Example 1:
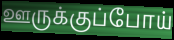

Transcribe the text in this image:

ஊருக்குப்போய்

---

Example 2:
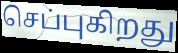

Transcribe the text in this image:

செப்புகிறது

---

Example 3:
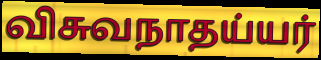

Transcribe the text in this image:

விசுவநாதய்யர்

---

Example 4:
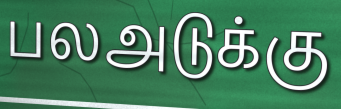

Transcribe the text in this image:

பலஅடுக்கு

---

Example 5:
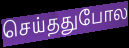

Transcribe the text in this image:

செய்ததுபோல